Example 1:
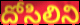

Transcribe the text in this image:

దోసిలిని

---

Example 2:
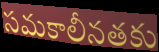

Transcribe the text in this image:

సమకాలీనతకు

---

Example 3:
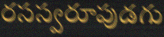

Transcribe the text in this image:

రసస్వరూపుడగు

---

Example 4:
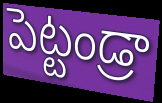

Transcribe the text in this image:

పెట్టండ్రా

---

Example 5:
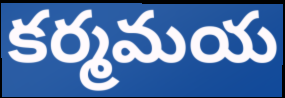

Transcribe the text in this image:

కర్మమయ